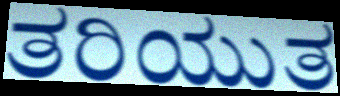
ತರಿಯುತ